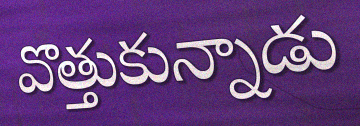
వొత్తుకున్నాడు